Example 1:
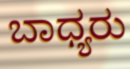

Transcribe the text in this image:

ಬಾಧ್ಯರು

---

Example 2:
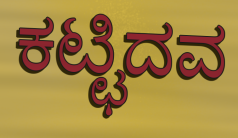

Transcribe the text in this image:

ಕಟ್ಟಿದವ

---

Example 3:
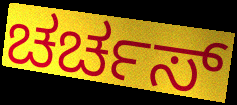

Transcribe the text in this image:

ಚರ್ಚಸ್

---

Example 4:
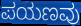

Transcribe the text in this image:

ಪಯಣವು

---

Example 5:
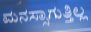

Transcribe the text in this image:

ಮನಸ್ಸಾಗುತ್ತಿಲ್ಲ